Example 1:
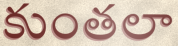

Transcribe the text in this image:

కుంతలా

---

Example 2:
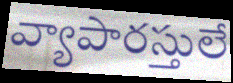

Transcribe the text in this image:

వ్యాపారస్తులే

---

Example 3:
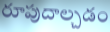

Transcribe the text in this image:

రూపుదాల్చడం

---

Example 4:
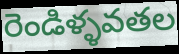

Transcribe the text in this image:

రెండిళ్ళవతల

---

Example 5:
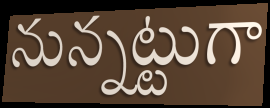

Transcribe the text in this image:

నున్నట్టుగా